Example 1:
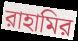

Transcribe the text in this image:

রাহামির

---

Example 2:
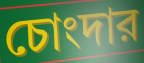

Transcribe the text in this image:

চোংদার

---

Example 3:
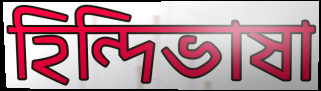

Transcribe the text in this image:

হিন্দিভাষা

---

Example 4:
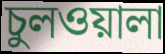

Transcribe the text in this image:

চুলওয়ালা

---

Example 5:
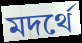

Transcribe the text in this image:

মদর্থে